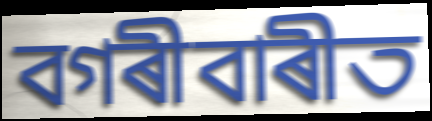
বগৰীবাৰীত